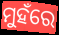
ମୁହଁରେ